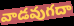
వాడవుగదా